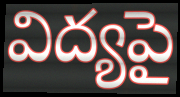
విద్యపై